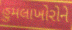
હુમલાખોરોને